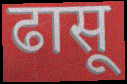
ढासू